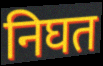
निघत